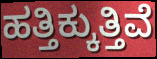
ಹತ್ತಿಕ್ಕುತ್ತಿವೆ